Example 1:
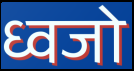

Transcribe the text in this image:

ध्वजो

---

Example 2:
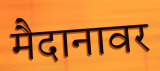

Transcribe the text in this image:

मैदानावर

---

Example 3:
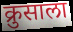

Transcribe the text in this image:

क्रुसाला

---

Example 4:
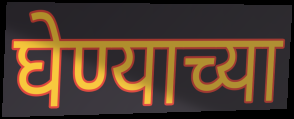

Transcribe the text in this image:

घेण्याच्या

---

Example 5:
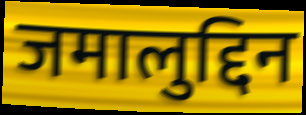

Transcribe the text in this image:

जमालुद्दिन